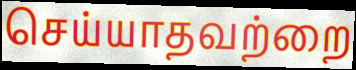
செய்யாதவற்றை